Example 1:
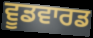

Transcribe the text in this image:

ਵੂਡਵਾਰਡ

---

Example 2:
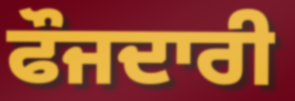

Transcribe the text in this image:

ਫੌਜਦਾਰੀ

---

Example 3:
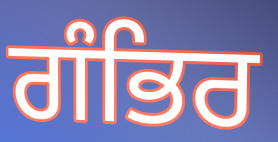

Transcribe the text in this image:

ਗੰਭਿਰ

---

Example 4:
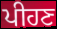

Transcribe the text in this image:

ਪੀਹਣ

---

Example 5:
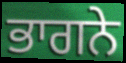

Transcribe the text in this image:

ਭਾਗਨੇ